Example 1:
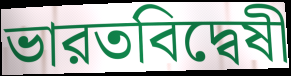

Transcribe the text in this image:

ভারতবিদ্বেষী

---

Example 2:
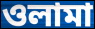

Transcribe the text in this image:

ওলামা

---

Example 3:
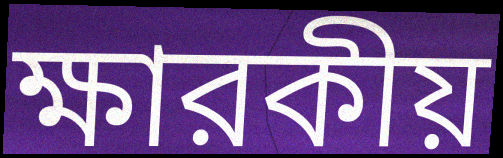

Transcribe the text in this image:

ক্ষারকীয়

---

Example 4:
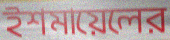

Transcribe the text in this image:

ইশমায়েলের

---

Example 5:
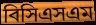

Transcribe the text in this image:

বিসিএসএম